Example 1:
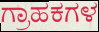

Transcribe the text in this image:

ಗ್ರಾಹಕಗಳ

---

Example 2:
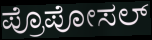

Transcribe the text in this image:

ಪ್ರೊಪೋಸಲ್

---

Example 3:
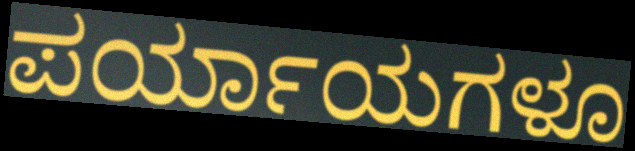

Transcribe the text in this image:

ಪರ್ಯಾಯಗಳೂ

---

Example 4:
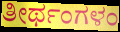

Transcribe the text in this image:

ತೀರ್ಥಂಗಳಂ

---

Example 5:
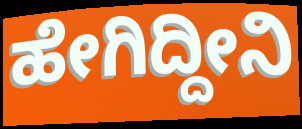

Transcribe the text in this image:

ಹೇಗಿದ್ದೀನಿ